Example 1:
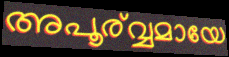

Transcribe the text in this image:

അപൂര്വ്വമായേ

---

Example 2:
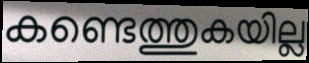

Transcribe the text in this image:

കണ്ടെത്തുകയില്ല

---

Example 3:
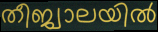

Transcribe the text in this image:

തീജ്വാലയിൽ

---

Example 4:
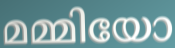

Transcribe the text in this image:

മമ്മിയോ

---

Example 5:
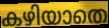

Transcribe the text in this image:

കഴിയാതെ